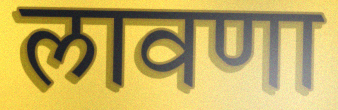
लावणा